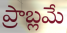
ప్రాబ్లమే